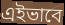
এইভাবে